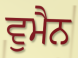
ਵੁਮੈਨ